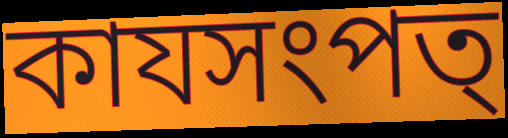
কাযসংপত্